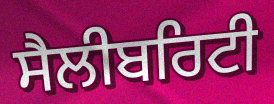
ਸੈਲੀਬਰਿਟੀ